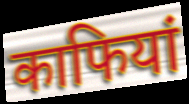
काफियां